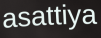
asattiya